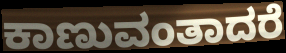
ಕಾಣುವಂತಾದರೆ